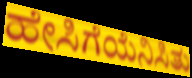
ಹೇಸಿಗೆಯೆನಿಸಿತು